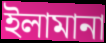
ইলামানা